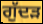
ਗੁੱਦੜ